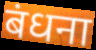
बंधना